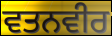
ਵਤਨਵੀਰ